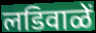
लडिवाळें